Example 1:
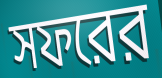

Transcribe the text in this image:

সফরের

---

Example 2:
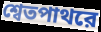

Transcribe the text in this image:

শ্বেতপাথরে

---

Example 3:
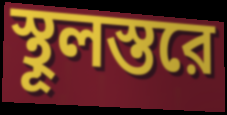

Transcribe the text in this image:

স্থূলস্তরে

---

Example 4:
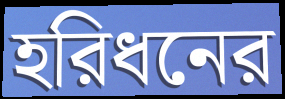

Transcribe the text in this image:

হরিধনের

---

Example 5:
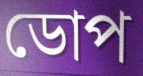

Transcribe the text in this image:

ডোপ